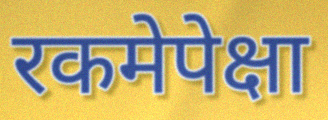
रकमेपेक्षा